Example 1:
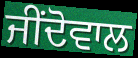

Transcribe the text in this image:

ਜੀਂਦੋਵਾਲ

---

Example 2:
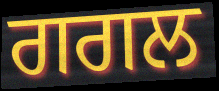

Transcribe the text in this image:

ਗਗਲ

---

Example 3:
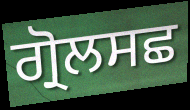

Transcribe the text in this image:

ਗ੍ਰੋਲਸਛ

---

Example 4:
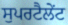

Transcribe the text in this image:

ਸੁਪਰਟੈਲੇਂਟ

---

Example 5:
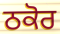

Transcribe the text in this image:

ਠਕੋਰ